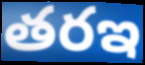
తరఇ